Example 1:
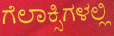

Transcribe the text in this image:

ಗೆಲಾಕ್ಸಿಗಳಲ್ಲಿ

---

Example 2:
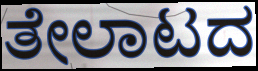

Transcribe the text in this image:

ತೇಲಾಟದ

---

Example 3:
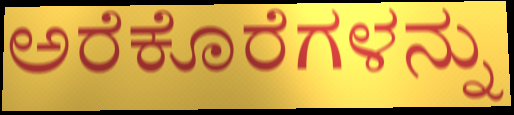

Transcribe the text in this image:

ಅರೆಕೊರೆಗಳನ್ನು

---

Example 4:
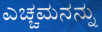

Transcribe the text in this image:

ಎಚ್ಚಮನನ್ನು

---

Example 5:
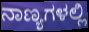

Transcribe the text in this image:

ನಾಣ್ಯಗಳಲ್ಲಿ